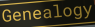
Genealogy